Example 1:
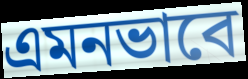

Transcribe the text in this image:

এমনভাবে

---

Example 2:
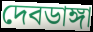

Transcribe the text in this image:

দেবডাঙ্গা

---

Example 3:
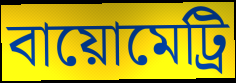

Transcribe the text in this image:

বায়োমেট্রি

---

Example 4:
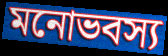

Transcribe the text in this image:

মনোভবস্য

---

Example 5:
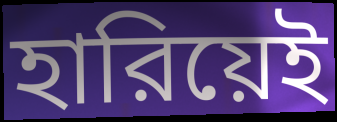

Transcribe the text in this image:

হারিয়েই